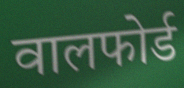
वालफोर्ड